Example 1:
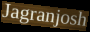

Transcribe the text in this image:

Jagranjosh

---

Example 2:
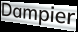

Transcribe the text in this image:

Dampier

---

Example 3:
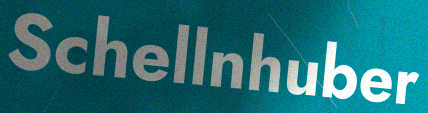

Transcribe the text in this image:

Schellnhuber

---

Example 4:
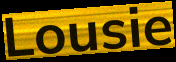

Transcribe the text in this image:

Lousie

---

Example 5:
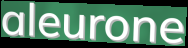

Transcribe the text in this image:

aleurone